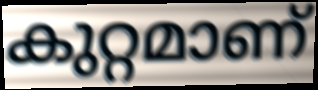
കുറ്റമാണ്